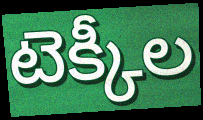
టెక్కీల